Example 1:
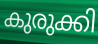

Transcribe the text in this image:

കുരുക്കി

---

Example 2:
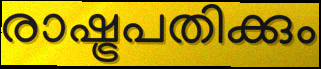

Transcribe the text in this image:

രാഷ്ട്രപതിക്കും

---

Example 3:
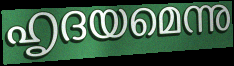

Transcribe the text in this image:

ഹൃദയമെന്നു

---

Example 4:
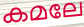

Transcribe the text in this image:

കമലേ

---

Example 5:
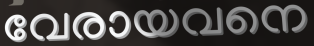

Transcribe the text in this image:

വേരായവനെ